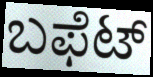
ಬಫೆಟ್